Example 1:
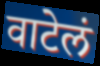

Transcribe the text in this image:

वाटेलं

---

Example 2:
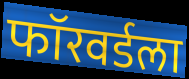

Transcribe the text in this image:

फॉरवर्डला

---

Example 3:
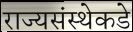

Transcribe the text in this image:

राज्यसंस्थेकडे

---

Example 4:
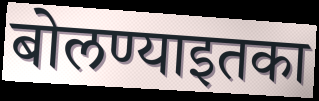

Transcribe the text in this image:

बोलण्याइतका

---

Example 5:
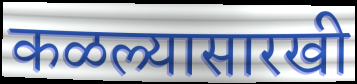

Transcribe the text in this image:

कळल्यासारखी